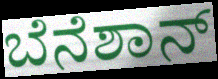
ಬೆನೆಶಾನ್